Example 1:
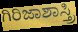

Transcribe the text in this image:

ಗಿರಿಜಾಶಾಸ್ತ್ರಿ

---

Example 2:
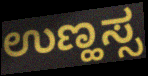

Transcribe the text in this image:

ಉಣ್ಹಸ್ಸ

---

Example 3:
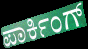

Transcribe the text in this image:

ಪಾರ್ಕಿಂಗ್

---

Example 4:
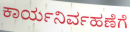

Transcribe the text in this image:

ಕಾರ್ಯನಿರ್ವಹಣೆಗೆ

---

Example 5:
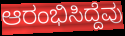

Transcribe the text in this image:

ಆರಂಭಿಸಿದ್ದೆವು